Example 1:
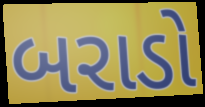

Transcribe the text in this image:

બરાડો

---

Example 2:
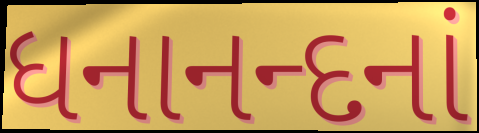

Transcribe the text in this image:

ધનાનન્દનાં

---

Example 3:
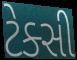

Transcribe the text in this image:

ટેક્સી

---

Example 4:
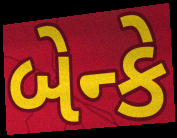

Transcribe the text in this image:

બેન્કે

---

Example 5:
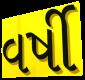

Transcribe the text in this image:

વર્ષી